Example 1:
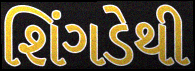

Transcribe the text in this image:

શિંગડેથી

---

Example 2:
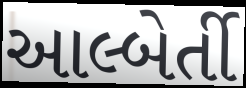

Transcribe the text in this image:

આલ્બેર્તી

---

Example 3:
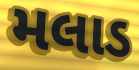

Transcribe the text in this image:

મલાડ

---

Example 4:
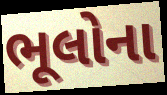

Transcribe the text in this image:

ભૂલોના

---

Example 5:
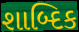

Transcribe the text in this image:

શાબ્દિક